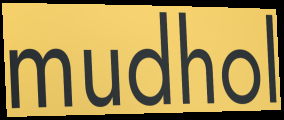
mudhol